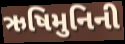
ઋષિમુનિની